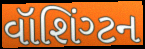
વૉશિંગ્ટન